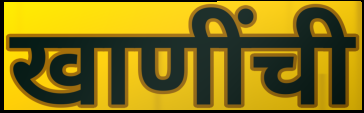
खाणींची